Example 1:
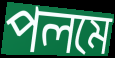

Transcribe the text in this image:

পলমে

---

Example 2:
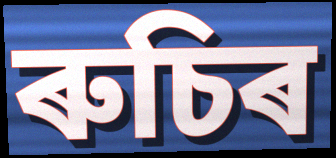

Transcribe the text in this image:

ৰুচিৰ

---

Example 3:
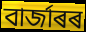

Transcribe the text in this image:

বাৰ্জাৰৰ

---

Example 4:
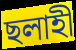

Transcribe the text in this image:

ছলাহী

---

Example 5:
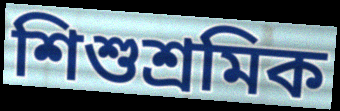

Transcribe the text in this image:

শিশুশ্ৰমিক